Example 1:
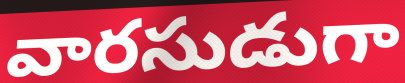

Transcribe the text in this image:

వారసుడుగా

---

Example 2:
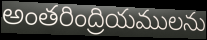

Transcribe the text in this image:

అంతరింద్రియములను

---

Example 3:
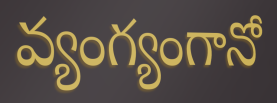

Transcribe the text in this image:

వ్యంగ్యంగానో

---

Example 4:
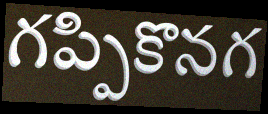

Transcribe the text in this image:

గప్పికొనగ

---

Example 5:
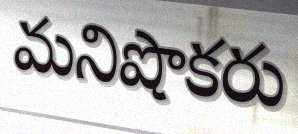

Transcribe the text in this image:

మనిషొకరు